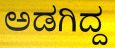
ಅಡಗಿದ್ದ